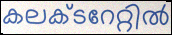
കലക്ടറേറ്റിൽ